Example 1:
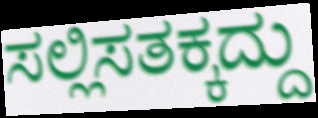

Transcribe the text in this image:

ಸಲ್ಲಿಸತಕ್ಕದ್ದು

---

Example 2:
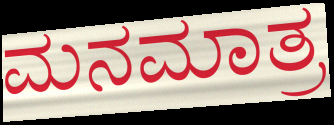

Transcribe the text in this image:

ಮನಮಾತ್ರ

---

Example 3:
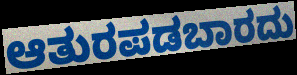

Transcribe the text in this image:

ಆತುರಪಡಬಾರದು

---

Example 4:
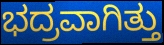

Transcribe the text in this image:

ಭದ್ರವಾಗಿತ್ತು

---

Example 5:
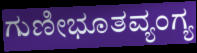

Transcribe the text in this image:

ಗುಣೀಭೂತವ್ಯಂಗ್ಯ